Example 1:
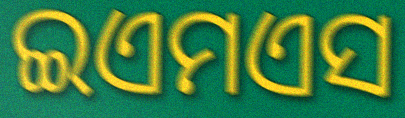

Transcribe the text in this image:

ଇଏମଏସ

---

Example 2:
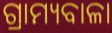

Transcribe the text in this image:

ଗ୍ରାମ୍ୟବାଳା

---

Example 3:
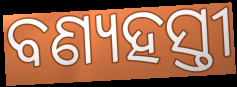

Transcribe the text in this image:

ବଣ୍ୟହସ୍ତୀ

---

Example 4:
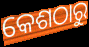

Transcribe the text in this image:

କେଶଠାରୁ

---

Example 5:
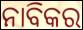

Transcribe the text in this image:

ନାବିକର